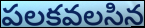
పలకవలసిన